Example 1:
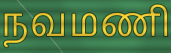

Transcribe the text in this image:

நவமணி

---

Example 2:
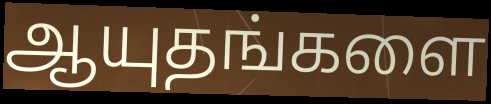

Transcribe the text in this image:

ஆயுதங்களை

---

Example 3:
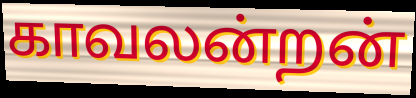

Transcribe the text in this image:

காவலன்றன்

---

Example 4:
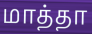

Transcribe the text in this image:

மாத்தா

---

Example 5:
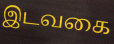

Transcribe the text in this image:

இடவகை